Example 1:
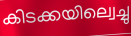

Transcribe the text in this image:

കിടക്കയില്വെച്ചു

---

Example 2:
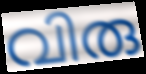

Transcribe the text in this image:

വിരു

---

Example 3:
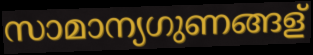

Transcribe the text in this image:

സാമാന്യഗുണങ്ങള്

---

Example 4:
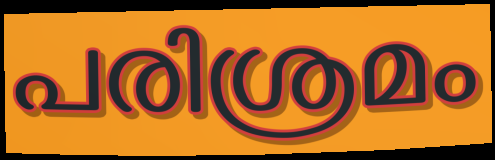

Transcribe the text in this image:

പരിശ്രമം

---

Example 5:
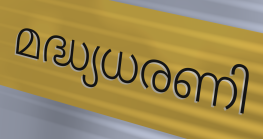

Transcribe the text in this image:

മദ്ധ്യധരണി